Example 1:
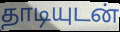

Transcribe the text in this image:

தாடியுடன்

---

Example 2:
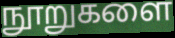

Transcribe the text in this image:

நூறுகளை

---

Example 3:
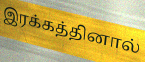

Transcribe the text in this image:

இரக்கத்தினால்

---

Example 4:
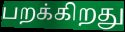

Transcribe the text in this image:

பறக்கிறது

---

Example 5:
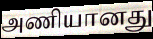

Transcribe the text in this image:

அணியானது